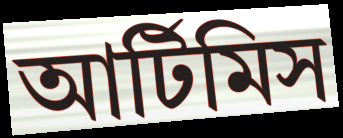
আর্টিমিস